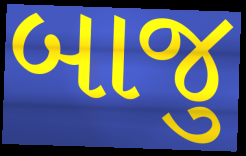
બાજુ